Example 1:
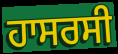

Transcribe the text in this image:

ਹਾਸਰਸੀ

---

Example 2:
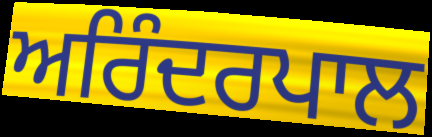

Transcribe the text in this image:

ਅਰਿੰਦਰਪਾਲ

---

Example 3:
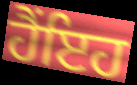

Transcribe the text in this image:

ਹੈਂਇਹ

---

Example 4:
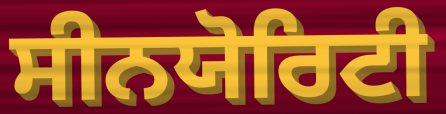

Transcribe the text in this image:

ਸੀਨਯੋਰਿਟੀ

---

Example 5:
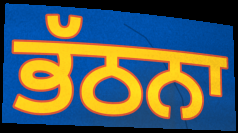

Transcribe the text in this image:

ਭੱਠਨਾ